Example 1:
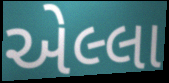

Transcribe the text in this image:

એલ્લા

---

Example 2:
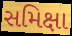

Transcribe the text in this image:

સમિક્ષા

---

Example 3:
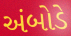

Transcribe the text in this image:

અંબોડે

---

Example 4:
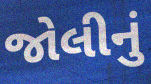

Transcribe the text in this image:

જોલીનું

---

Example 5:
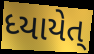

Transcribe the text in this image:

ધ્યાયેત્